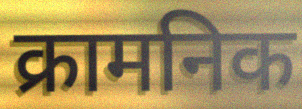
क्रामनिक